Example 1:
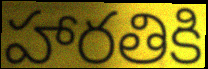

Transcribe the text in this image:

హారతికి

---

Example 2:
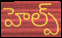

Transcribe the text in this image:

హెల్ప్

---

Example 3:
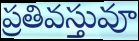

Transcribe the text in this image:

ప్రతివస్తువూ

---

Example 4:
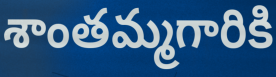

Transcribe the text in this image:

శాంతమ్మగారికి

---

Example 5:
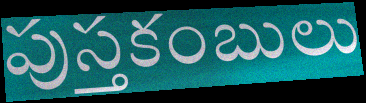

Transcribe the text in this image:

పుస్తకంబులు